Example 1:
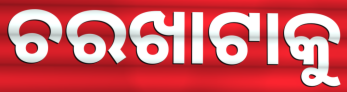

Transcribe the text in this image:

ଚରଖାଟାକୁ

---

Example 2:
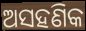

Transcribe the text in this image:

ଅସହଣିକ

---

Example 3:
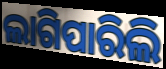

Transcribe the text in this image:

ଲାଗିପାରିଲି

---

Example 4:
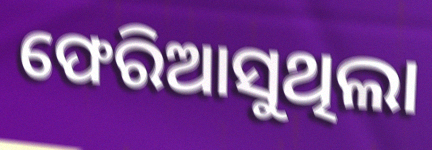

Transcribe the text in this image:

ଫେରିଆସୁଥିଲା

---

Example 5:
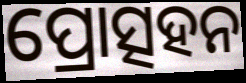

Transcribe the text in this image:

ପ୍ରୋତ୍ସହନ